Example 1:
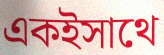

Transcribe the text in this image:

একইসাথে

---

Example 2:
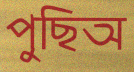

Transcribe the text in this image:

পুছিঅ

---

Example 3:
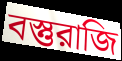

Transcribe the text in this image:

বস্তুরাজি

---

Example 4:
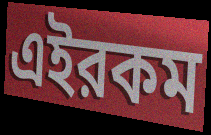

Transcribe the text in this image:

এইরকম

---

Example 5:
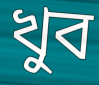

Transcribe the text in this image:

খুব